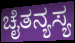
ಚೈತನ್ಯಸ್ಯ